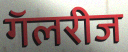
गॅलरीज